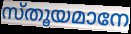
സ്തൂയമാനേ